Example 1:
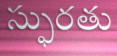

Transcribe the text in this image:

స్ఫురతు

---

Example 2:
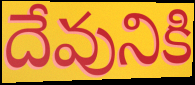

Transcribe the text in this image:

దేవునికి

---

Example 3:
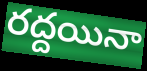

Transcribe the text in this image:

రద్దయినా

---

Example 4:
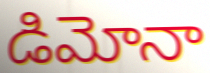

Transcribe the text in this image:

డిమోనా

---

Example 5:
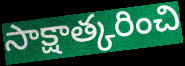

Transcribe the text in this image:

సాక్షాత్కరించి